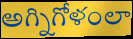
అగ్నిగోళంలా